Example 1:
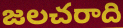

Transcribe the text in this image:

జలచరాది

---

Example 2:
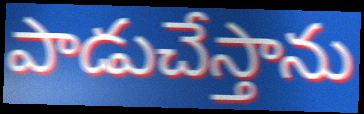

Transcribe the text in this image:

పాడుచేస్తాను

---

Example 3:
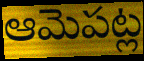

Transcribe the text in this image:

ఆమెపట్ల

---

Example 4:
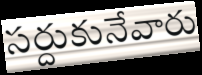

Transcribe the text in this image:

సర్దుకునేవారు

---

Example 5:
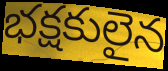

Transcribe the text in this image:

భక్షకులైన